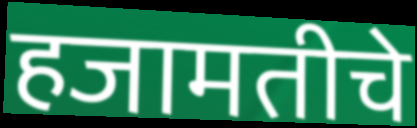
हजामतीचे